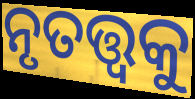
ନୃତତ୍ତ୍ଵକୁ